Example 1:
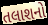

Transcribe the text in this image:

તલાશનો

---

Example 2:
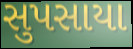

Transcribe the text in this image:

સુપસાયા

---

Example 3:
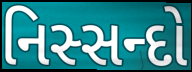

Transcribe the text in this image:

નિસ્સન્દો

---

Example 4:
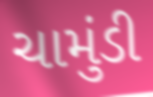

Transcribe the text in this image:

ચામુંડી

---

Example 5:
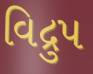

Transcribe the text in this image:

વિદ્રુપ